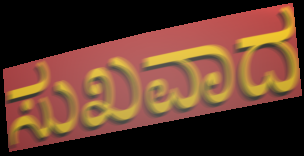
ಸುಖವಾದ